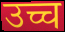
उच्‍च